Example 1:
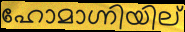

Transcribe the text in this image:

ഹോമാഗ്നിയില്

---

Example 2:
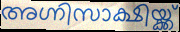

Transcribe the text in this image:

അഗ്നിസാക്ഷിയ്ക്ക്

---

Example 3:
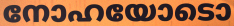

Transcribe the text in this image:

നോഹയോടൊ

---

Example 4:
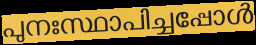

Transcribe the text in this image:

പുനഃസ്ഥാപിച്ചപ്പോൾ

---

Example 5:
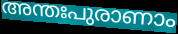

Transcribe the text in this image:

അന്തഃപുരാണാം